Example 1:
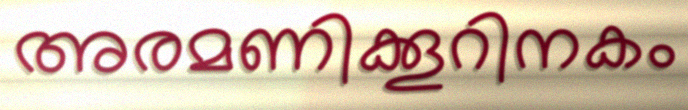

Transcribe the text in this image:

അരമണിക്കൂറിനകം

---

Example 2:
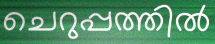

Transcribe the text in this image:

ചെറുപ്പത്തിൽ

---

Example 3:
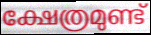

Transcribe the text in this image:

ക്ഷേത്രമുണ്ട്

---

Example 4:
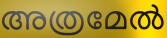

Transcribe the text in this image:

അത്രമേൽ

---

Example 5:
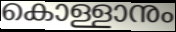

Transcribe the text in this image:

കൊള്ളാനും